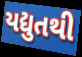
યદ્યુતથી